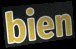
bien